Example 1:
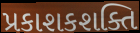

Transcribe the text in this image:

પ્રકાશકશક્તિ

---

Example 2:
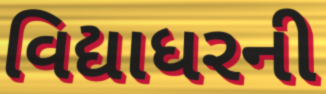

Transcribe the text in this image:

વિદ્યાધરની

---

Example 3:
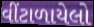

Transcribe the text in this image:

વીંટાળાયેલો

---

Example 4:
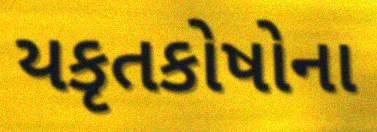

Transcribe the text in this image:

યકૃતકોષોના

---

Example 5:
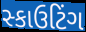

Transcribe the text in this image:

સ્કાઉટિંગ